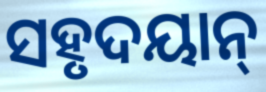
ସହୃଦୟାନ୍